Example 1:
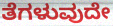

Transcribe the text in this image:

ತೆಗಳುವುದೇ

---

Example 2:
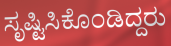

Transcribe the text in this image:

ಸೃಷ್ಟಿಸಿಕೊಂಡಿದ್ದರು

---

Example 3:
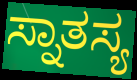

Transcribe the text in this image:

ಸ್ನಾತಸ್ಯ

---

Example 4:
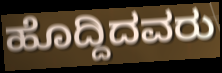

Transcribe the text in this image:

ಹೊದ್ದಿದವರು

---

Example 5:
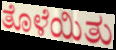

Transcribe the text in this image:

ತೊಳೆಯಿತು